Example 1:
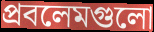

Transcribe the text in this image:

প্রবলেমগুলো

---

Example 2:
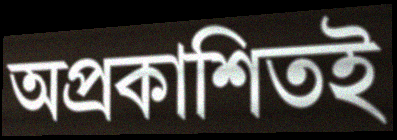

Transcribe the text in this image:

অপ্রকাশিতই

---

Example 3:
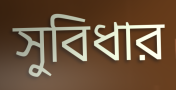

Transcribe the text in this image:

সুবিধার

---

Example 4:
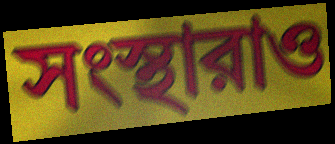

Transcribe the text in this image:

সংস্থারাও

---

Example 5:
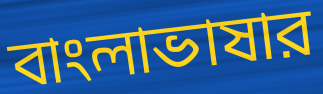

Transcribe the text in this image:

বাংলাভাষার